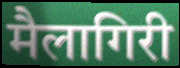
मैलागिरी